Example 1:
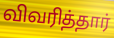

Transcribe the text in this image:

விவரித்தார்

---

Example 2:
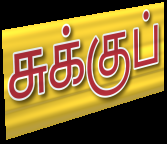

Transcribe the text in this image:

சுக்குப்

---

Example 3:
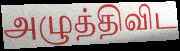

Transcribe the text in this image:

அழுத்திவிட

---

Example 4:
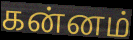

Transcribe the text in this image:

கன்னம்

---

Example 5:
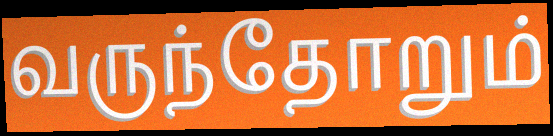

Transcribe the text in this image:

வருந்தோறும்